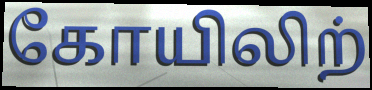
கோயிலிற்